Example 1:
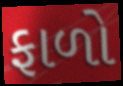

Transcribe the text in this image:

ફાળો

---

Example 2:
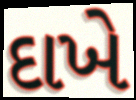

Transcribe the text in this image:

દાખે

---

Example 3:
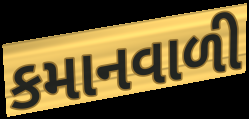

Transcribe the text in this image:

કમાનવાળી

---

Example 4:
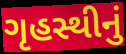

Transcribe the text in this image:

ગૃહસ્થીનું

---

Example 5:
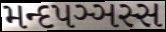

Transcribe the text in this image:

મન્દપઞ્ઞસ્સ